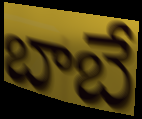
బాబే